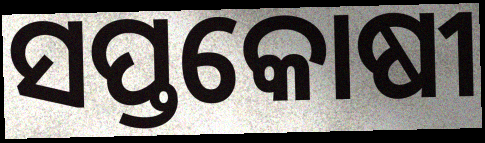
ସପ୍ତକୋଷୀ